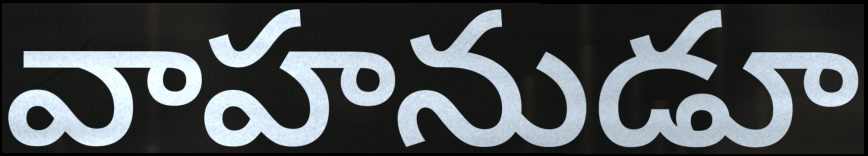
వాహనుడూ